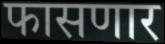
फासणार